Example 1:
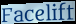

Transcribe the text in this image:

Facelift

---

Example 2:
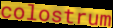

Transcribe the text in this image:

colostrum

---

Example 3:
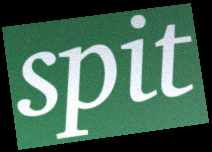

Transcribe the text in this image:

spit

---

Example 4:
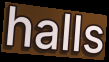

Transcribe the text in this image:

halls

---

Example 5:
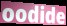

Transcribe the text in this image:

oodide